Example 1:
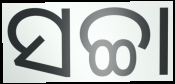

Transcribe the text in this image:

ସଚ୍ଚା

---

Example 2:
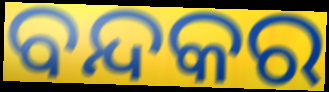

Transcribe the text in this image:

ବନ୍ଦକର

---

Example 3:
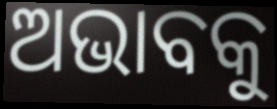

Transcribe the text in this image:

ଅଭାବକୁ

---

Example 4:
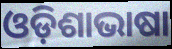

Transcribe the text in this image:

ଓଡ଼ିଶାଭାଷା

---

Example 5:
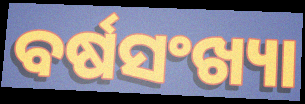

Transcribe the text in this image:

ବର୍ଷସଂଖ୍ୟା